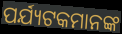
ପର୍ଯ୍ୟଟକମାନଙ୍କ